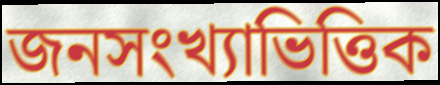
জনসংখ্যাভিত্তিক